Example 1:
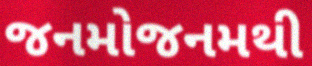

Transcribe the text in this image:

જનમોજનમથી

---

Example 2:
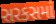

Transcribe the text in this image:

સરકસમાં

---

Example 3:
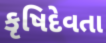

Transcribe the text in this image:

કૃષિદેવતા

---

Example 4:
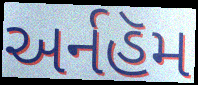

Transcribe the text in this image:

અર્નહૅમ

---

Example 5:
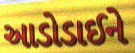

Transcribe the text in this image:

આડોડાઈને